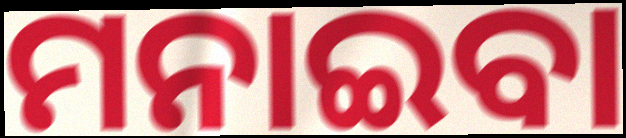
ମନାଇବା